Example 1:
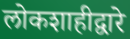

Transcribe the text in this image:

लोकशाहीद्वारे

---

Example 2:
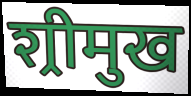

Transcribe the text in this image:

श्रीमुख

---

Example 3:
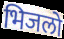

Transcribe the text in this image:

भिजलो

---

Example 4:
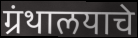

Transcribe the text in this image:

ग्रंथालयाचे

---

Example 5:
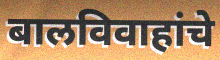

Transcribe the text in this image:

बालविवाहांचे